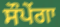
ਸੌਪੇਂਗਾ